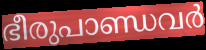
ഭീരുപാണ്ഡവർ